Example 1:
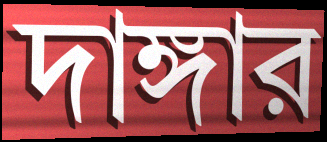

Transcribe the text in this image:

দাঙ্গার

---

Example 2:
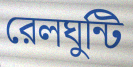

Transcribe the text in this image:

রেলঘুন্টি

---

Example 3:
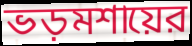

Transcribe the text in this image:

ভড়মশায়ের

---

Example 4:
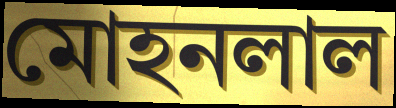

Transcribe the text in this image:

মোহনলাল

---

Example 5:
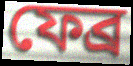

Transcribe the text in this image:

ফেব্র